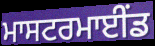
ਮਾਸਟਰਮਾਈਂਡ